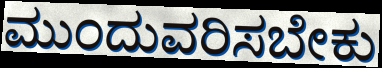
ಮುಂದುವರಿಸಬೇಕು